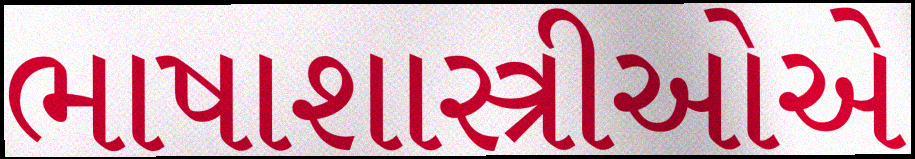
ભાષાશાસ્ત્રીઓએ